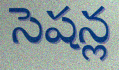
సెషన్ల